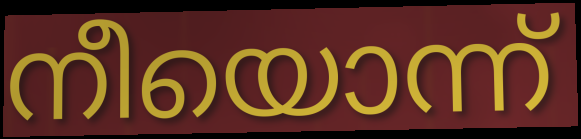
നീയൊന്ന്